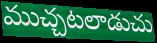
ముచ్చటలాడుచు